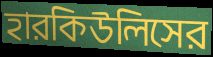
হারকিউলিসের